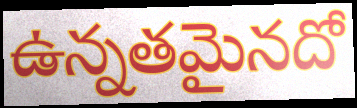
ఉన్నతమైనదో